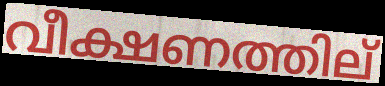
വീക്ഷണത്തില്